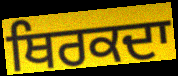
ਥਿਰਕਦਾ